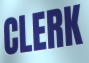
CLERK